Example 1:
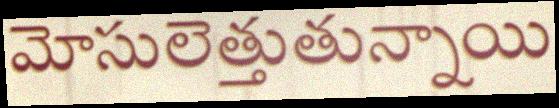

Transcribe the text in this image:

మోసులెత్తుతున్నాయి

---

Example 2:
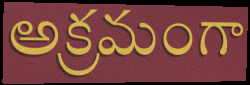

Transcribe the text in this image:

అక్రమంగా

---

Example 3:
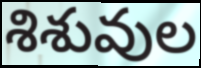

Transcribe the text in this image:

శిశువుల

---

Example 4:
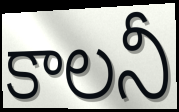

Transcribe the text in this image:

కాలనీ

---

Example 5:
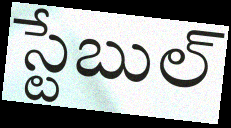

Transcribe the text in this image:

స్టేబుల్